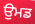
ਉਮਡ